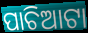
ପାଚିଆଟା